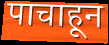
पाचाहून